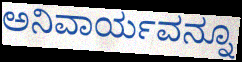
ಅನಿವಾರ್ಯವನ್ನೂ